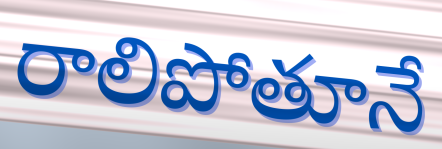
రాలిపోతూనే